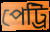
পেট্ৰি